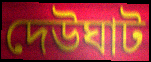
দেউঘাট